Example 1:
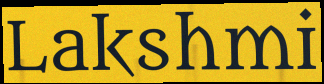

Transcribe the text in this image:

Lakshmi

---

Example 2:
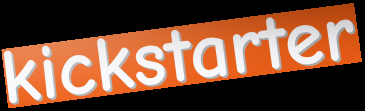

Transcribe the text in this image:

kickstarter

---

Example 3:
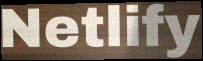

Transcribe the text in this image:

Netlify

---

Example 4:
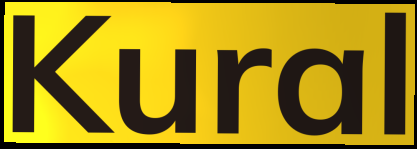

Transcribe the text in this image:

Kural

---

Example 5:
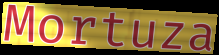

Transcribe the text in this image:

Mortuza